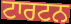
ਟਾਰਟਨ